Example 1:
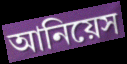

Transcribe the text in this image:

আনিয়েস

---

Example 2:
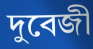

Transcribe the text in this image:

দুবেজী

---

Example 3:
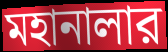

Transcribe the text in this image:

মহানালার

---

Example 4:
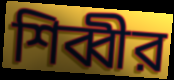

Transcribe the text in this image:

শিব্বীর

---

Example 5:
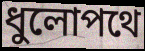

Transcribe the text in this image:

ধুলোপথে